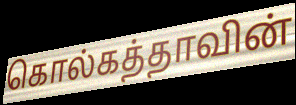
கொல்கத்தாவின்